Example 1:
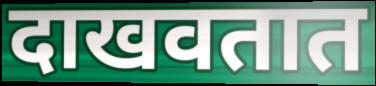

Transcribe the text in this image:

दाखवतात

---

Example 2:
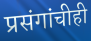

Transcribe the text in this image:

प्रसंगांचीही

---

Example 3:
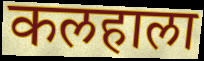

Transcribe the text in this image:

कलहाला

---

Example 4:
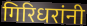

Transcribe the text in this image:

गिरिधरांनी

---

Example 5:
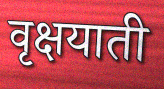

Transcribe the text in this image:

वृक्षयाती